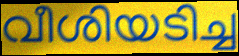
വീശിയടിച്ച